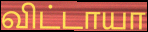
விட்டாயா